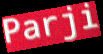
Parji